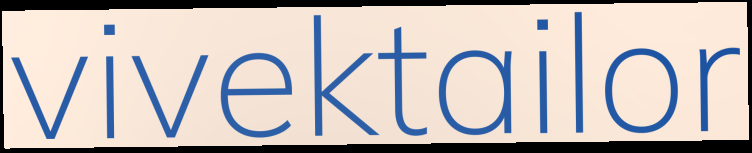
vivektailor